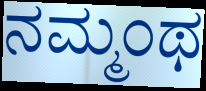
ನಮ್ಮಂಥ